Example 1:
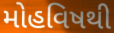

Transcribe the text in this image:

મોહવિષથી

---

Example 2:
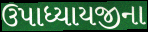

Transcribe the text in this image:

ઉપાધ્યાયજીના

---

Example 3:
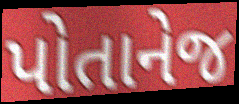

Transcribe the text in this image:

પોતાનેજ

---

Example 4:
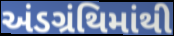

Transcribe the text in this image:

અંડગ્રંથિમાંથી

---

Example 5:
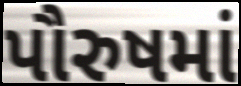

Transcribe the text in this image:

પૌરુષમાં